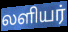
லளியர்